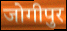
जोगीपुर